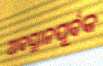
ଅବସ୍ଥାନପୂର୍ବକ